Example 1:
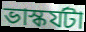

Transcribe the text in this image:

ভাস্কর্যটা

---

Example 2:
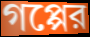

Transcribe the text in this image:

গপ্পের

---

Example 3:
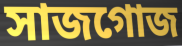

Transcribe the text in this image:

সাজগোজ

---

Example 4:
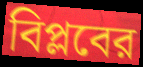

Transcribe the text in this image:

বিপ্লবের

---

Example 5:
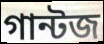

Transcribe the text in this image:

গান্টজ